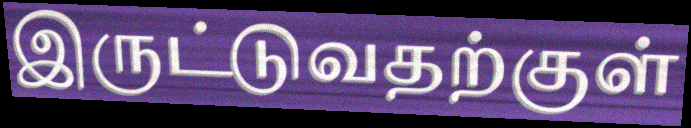
இருட்டுவதற்குள்